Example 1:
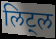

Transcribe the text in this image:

लिट्‌ल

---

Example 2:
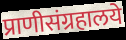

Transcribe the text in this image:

प्राणीसंग्रहालये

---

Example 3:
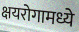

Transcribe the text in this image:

क्षयरोगामध्ये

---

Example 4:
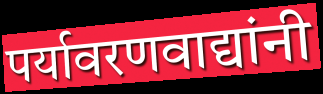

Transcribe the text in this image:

पर्यावरणवाद्यांनी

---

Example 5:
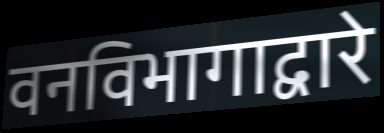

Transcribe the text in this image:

वनविभागाद्वारे